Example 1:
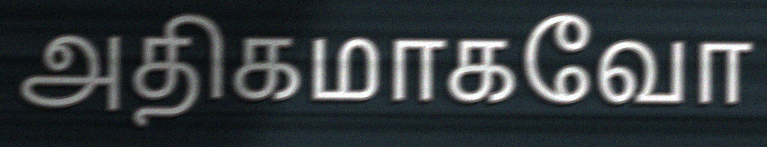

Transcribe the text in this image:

அதிகமாகவோ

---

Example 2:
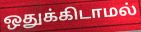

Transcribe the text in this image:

ஒதுக்கிடாமல்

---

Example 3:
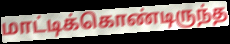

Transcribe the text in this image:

மாட்டிக்கொண்டிருந்த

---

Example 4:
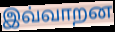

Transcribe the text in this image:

இவ்வாறன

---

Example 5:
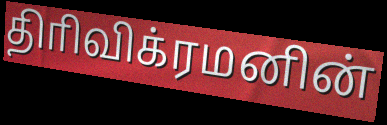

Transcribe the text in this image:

திரிவிக்ரமனின்